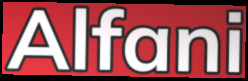
Alfani